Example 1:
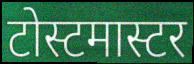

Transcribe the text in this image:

टोस्टमास्टर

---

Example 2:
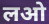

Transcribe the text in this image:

लओ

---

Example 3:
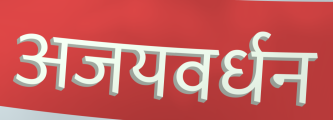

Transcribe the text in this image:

अजयवर्धन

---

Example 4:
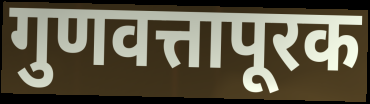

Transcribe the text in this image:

गुणवत्तापूरक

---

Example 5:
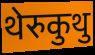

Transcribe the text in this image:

थेरुकुथु